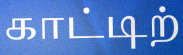
காட்டிற்